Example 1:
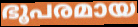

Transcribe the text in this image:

ഭൂപരമായ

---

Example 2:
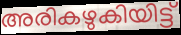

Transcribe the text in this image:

അരികഴുകിയിട്ട്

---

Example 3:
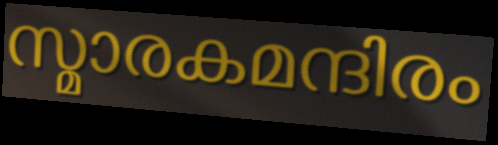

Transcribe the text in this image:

സ്മാരകമന്ദിരം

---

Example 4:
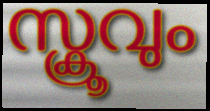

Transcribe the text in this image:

സ്ക്രൂവും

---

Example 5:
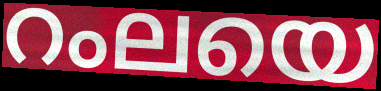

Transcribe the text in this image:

റംലയെ